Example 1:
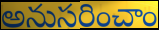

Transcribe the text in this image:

అనుసరించాం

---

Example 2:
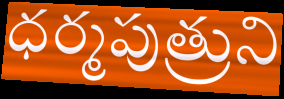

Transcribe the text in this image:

ధర్మపుత్రుని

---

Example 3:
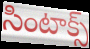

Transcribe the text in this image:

సింటాక్స్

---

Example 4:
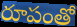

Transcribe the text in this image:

రూపంతో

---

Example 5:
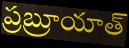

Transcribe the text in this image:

ప్రబ్రూయాత్